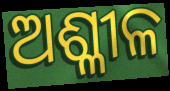
ଅଶ୍ଳୀଳ